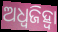
ଅଧ୍ୱଜିହ୍ବା